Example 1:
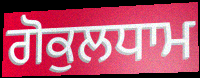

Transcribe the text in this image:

ਗੋਕੁਲਧਾਮ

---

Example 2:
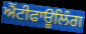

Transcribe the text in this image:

ਐਂਟੀਫਾਊਲਿੰਗ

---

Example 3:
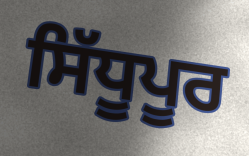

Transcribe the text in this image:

ਸਿੱਧੂਪੂਰ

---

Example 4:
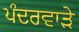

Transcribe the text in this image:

ਪੰਦਰਵਾੜੇ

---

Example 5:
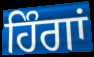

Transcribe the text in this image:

ਹਿੰਗਾਂ